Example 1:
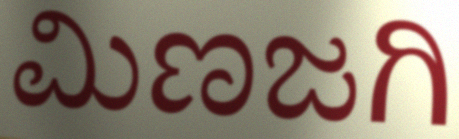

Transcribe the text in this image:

ಮಿಣಜಗಿ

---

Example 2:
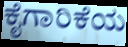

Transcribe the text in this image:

ಕೈಗಾರಿಕೆಯ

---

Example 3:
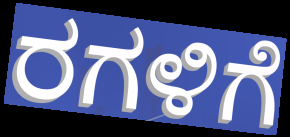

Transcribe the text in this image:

ರಗಳಿಗೆ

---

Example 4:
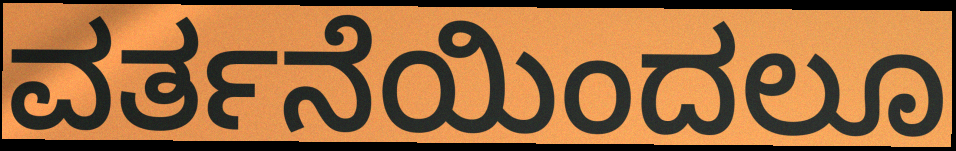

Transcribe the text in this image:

ವರ್ತನೆಯಿಂದಲೂ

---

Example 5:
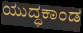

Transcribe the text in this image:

ಯುದ್ಧಕಾಂಡ